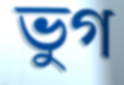
ভুগ